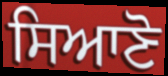
ਸਿਆਣੋ